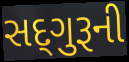
સદ્‌ગુરૂની